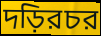
দড়িরচর